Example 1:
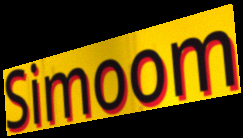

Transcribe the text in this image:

Simoom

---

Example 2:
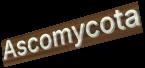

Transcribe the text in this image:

Ascomycota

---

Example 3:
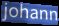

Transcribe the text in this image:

johann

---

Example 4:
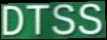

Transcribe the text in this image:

DTSS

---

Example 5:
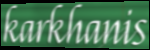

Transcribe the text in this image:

karkhanis